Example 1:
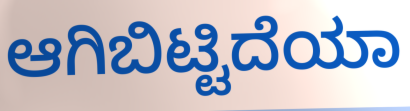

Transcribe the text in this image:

ಆಗಿಬಿಟ್ಟಿದೆಯಾ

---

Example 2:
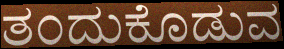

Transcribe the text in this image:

ತಂದುಕೊಡುವ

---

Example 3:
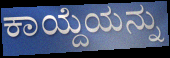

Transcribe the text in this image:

ಕಾಯ್ದೆಯನ್ನು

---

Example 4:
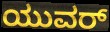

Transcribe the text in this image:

ಯುವರ್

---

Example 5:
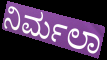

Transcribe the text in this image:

ನಿರ್ಮಲಾ